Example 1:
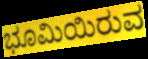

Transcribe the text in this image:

ಭೂಮಿಯಿರುವ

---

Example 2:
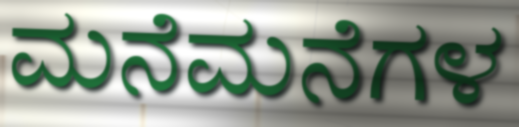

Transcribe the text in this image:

ಮನೆಮನೆಗಳ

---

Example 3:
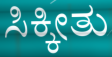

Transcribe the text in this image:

ಸಿಕ್ಕೀತು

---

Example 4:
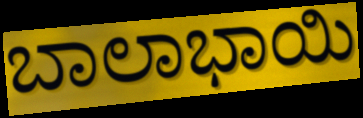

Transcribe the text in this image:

ಬಾಲಾಭಾಯಿ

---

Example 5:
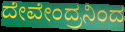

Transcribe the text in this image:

ದೇವೇಂದ್ರನಿಂದ